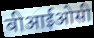
बीआईओसी